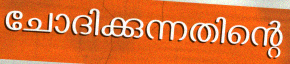
ചോദിക്കുന്നതിന്റെ